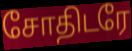
சோதிடரே